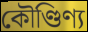
কৌণ্ডিণ্য